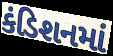
કંડિશનમાં